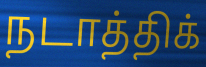
நடாத்திக்